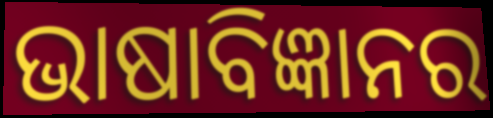
ଭାଷାବିଜ୍ଞାନର